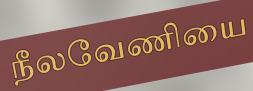
நீலவேணியை